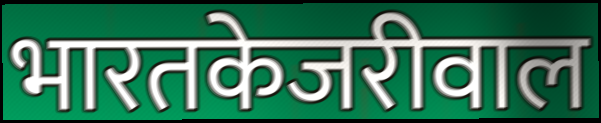
भारतकेजरीवाल